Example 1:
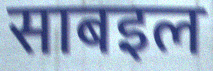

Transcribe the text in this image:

साबइल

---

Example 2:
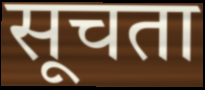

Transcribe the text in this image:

सूचता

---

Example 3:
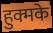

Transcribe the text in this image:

हुक्मके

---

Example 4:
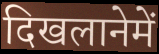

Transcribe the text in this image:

दिखलानेमें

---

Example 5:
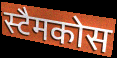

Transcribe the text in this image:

स्टैमकोस